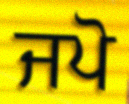
ਜਪੋ